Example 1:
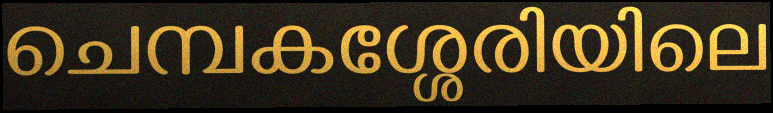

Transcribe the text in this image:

ചെമ്പകശ്ശേരിയിലെ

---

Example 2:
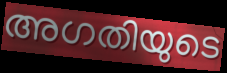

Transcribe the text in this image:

അഗതിയുടെ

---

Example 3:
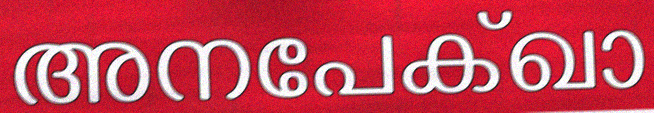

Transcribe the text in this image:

അനപേക്ഖാ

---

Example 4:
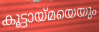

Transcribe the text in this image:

കൂട്ടായ്മയെയും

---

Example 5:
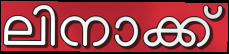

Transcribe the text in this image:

ലിനാക്ക്